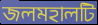
জলমহালটি